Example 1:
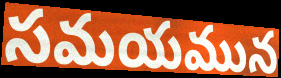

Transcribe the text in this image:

సమయమున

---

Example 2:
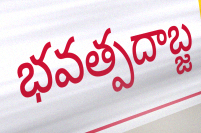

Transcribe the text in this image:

భవత్పదాబ్జ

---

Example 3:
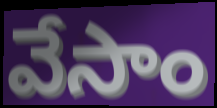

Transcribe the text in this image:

వేసాం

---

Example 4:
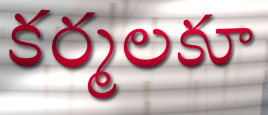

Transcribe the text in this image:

కర్మలకూ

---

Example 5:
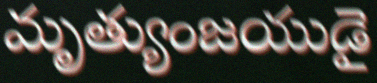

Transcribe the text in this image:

మృత్యుంజయుడై